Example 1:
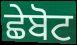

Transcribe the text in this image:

ਛੇਬੋਟ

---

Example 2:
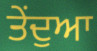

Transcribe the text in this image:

ਤੇਂਦੁਆ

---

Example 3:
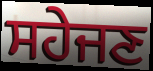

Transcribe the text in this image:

ਸਹੇਜਣ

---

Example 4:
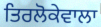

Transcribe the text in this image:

ਤਿਰਲੋਕੇਵਾਲਾ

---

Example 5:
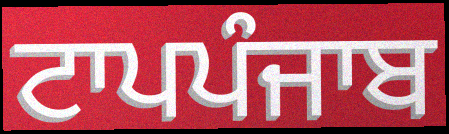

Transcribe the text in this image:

ਟਾਪਪੰਜਾਬ